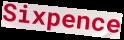
Sixpence